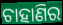
ଚାହାଣିର